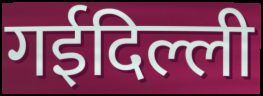
गईदिल्ली